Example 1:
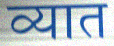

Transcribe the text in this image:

व्यात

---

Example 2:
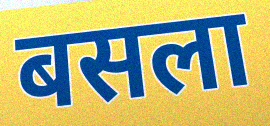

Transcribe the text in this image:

बसला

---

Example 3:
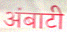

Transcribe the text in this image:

अंबाटी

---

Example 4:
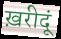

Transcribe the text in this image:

ख़रीदूं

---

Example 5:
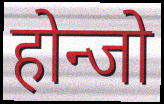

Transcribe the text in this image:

होन्जो